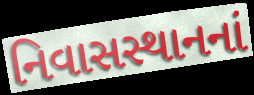
નિવાસસ્થાનનાં